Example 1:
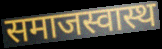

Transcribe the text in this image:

समाजस्वास्थ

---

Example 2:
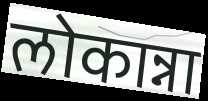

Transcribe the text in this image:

लोकान्ना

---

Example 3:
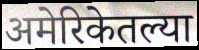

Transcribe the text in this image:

अमेरिकेतल्या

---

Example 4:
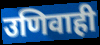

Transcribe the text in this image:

उणिवाही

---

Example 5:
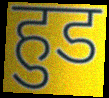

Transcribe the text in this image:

हुड